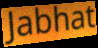
Jabhat